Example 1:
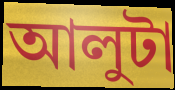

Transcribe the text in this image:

আলুটা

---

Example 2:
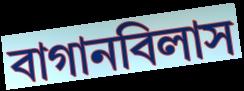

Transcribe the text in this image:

বাগানবিলাস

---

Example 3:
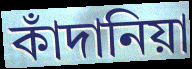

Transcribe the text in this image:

কাঁদানিয়া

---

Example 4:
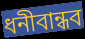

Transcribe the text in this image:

ধনীবান্ধব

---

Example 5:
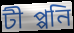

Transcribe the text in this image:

টীপ্পনি